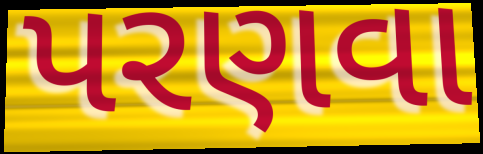
પરણવા